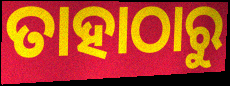
ତାହାଠାରୁ